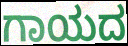
ಗಾಯದ